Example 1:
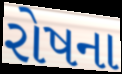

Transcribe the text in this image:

રોષના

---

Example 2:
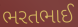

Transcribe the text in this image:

ભરતભાઈ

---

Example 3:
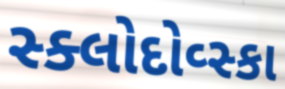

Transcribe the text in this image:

સ્ક્લોદોવ્સ્કા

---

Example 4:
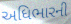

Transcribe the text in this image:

અધિભારની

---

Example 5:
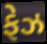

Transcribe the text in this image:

ફેઝ